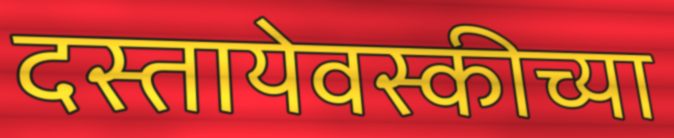
दस्तायेवस्कीच्या